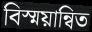
বিস্ময়ান্বিত